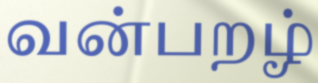
வன்பறழ்